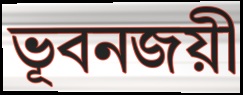
ভূবনজয়ী